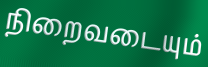
நிறைவடையும்